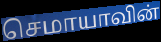
செமாயாவின்